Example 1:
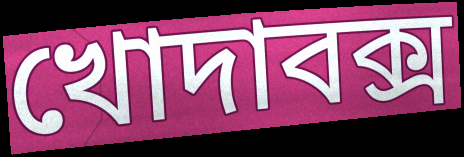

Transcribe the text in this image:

খোদাবক্স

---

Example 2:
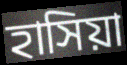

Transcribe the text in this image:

হাসিয়া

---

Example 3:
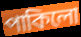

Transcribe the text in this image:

পাকিলো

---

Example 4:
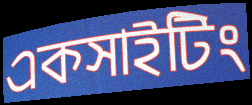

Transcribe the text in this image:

একসাইটিং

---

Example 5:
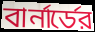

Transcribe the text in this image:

বার্নার্ডের